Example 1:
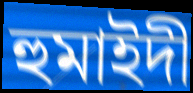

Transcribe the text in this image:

হুমাইদী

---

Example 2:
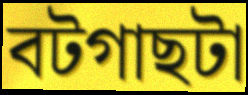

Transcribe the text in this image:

বটগাছটা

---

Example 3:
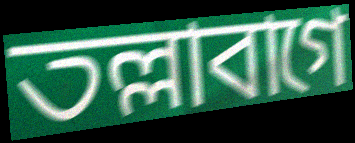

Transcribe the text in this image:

তল্লাবাগে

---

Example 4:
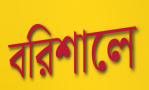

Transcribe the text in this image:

বরিশালে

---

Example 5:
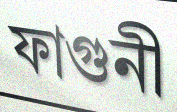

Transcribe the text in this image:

ফাগুনী